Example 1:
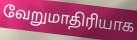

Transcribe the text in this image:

வேறுமாதிரியாக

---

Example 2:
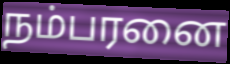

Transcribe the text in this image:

நம்பரனை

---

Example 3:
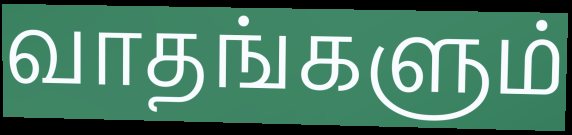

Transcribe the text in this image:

வாதங்களும்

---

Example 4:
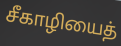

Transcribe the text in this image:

சீகாழியைத்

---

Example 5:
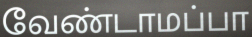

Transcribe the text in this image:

வேண்டாமப்பா